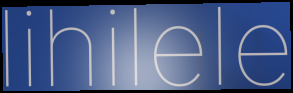
lihilele